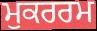
ਮੁਕਰਰਮ